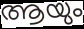
ആയും